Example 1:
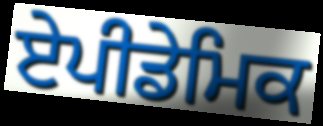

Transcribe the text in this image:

ਏਪੀਡੇਮਿਕ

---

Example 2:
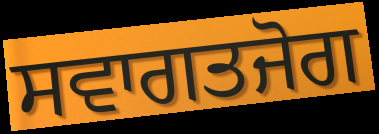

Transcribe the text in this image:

ਸਵਾਗਤਜੋਗ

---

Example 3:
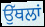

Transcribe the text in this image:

ਉੱਥਲਾਂ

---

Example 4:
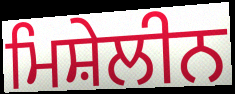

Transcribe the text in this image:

ਮਿਸ਼ੇਲੀਨ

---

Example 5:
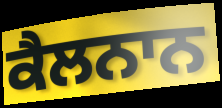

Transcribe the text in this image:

ਕੈਲਨਾਨ